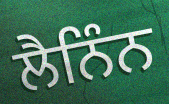
ਲੈਨਿੰਨ